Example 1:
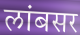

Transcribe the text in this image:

लांबसर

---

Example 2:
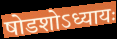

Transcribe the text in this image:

षोडशोऽध्यायः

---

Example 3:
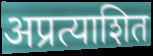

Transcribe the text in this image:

अप्रत्याशित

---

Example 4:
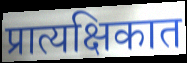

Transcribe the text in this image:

प्रात्यक्षिकात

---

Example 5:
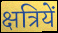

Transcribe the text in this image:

क्षत्रियें